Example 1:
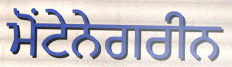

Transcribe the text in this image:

ਮੋਂਟੇਨੇਗਰੀਨ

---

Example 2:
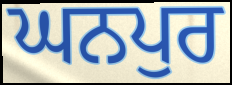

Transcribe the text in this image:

ਘਨਪੁਰ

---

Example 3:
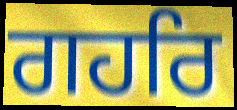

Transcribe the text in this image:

ਗਹਰਿ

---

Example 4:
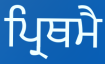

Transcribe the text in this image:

ਪ੍ਰਿਥਮੈ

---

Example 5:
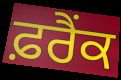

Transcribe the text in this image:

ਫ਼ਰੈਂਕ